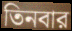
তিনবার